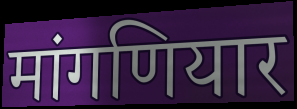
मांगणियार